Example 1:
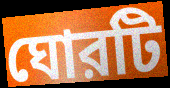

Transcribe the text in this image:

ঘোরটি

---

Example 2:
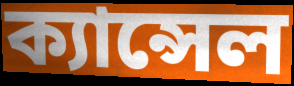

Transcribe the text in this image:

ক্যান্সেল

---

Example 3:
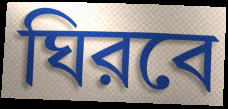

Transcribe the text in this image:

ঘিরবে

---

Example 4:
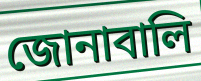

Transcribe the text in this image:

জোনাবালি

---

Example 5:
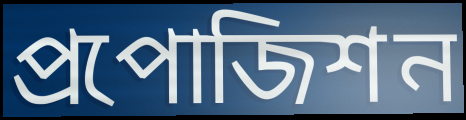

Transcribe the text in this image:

প্রপোজিশন